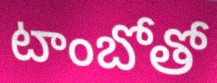
టాంబోతో